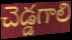
చెడ్డగాలి